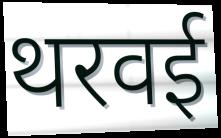
थरवई